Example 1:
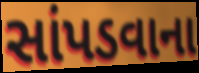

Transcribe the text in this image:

સાંપડવાના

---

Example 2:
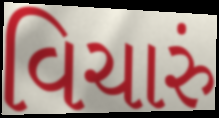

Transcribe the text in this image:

વિચારું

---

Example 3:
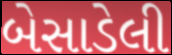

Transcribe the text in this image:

બેસાડેલી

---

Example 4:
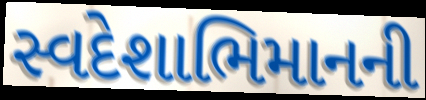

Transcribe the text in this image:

સ્વદેશાભિમાનની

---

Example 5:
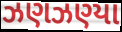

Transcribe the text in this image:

ઝણઝણ્યા